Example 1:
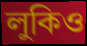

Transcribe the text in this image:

লুকিও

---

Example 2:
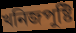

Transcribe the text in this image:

খনিজপুষ্টি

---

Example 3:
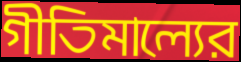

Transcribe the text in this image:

গীতিমাল্যের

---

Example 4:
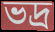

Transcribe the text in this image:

ভদ্র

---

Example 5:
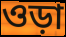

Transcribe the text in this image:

ওড়া